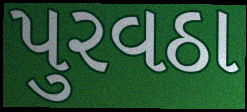
પુરવઠા